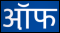
ऑ़फ